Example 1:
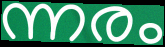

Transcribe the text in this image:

ന്നരം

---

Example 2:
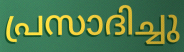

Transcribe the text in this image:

പ്രസാദിച്ചു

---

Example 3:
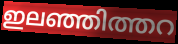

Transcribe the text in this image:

ഇലഞ്ഞിത്തറ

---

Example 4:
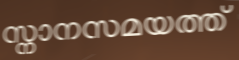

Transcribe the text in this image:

സ്നാനസമയത്ത്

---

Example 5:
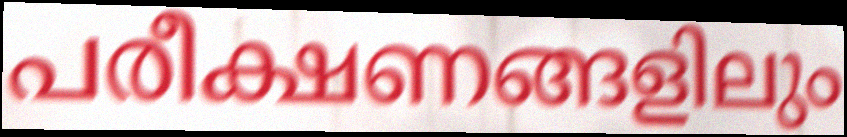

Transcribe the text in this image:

പരീക്ഷണങ്ങളിലും